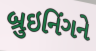
બ્રુઇનિંગને